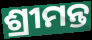
ଶ୍ରୀମନ୍ତ